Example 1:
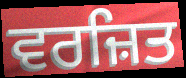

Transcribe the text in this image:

ਵਰਜ਼ਿਤ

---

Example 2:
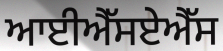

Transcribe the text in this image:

ਆਈਐੱਸਏਐੱਸ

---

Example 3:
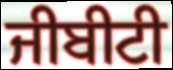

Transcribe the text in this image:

ਜੀਬੀਟੀ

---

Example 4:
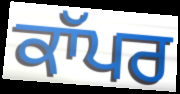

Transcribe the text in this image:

ਕਾੱਪਰ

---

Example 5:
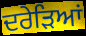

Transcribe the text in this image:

ਦਰੇੜਿਆਂ